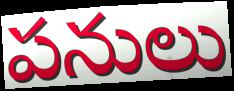
పనులు